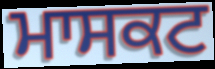
ਮਾਸਕਟ